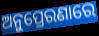
ଅନୁପ୍ରେରଣାରେ